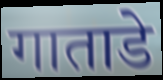
गाताडे